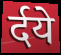
र्दये